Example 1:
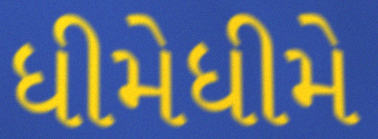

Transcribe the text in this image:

ધીમેધીમે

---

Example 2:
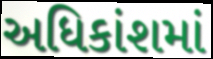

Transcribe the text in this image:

અધિકાંશમાં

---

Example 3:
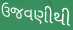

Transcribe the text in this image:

ઉજવણીથી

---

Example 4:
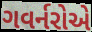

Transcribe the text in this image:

ગવર્નરોએ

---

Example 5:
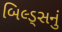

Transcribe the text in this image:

બિલ્ડ્સનું